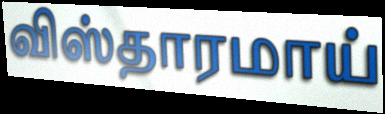
விஸ்தாரமாய்